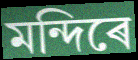
মন্দিৰে